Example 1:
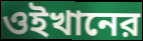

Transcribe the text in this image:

ওইখানের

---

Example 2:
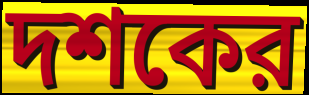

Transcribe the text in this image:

দশকের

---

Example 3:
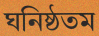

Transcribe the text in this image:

ঘনিষ্ঠতম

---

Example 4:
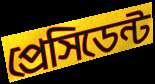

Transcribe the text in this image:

প্রেসিডেন্ট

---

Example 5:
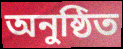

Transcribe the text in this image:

অনুষ্ঠিত